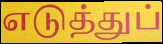
எடுத்துப்